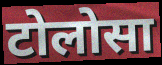
टोलोसा